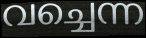
വച്ചെന്ന